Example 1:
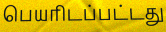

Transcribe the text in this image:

பெயரிடப்பட்டது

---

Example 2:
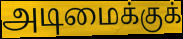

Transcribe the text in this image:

அடிமைக்குக்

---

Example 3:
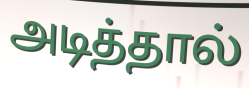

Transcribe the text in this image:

அடித்தால்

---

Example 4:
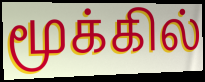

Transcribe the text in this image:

மூக்கில்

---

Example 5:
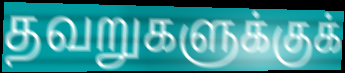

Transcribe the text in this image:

தவறுகளுக்குக்